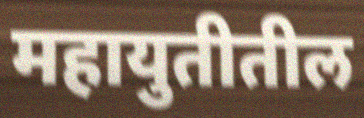
महायुतीतील